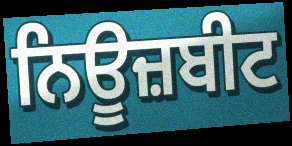
ਨਿਊਜ਼ਬੀਟ